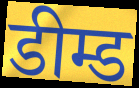
डीम्ड